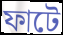
ফাটে